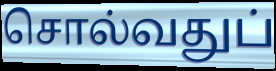
சொல்வதுப்